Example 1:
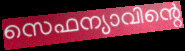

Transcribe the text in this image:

സെഫന്യാവിന്റെ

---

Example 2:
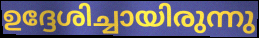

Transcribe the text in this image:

ഉദ്ദേശിച്ചായിരുന്നു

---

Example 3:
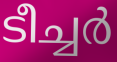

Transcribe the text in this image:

ടീച്ചർ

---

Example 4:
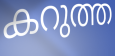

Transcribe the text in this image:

കറുത്ത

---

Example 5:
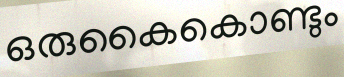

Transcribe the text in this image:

ഒരുകൈകൊണ്ടും